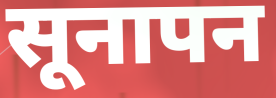
सूनापन